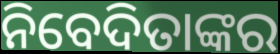
ନିବେଦିତାଙ୍କର